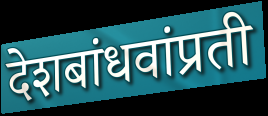
देशबांधवांप्रती